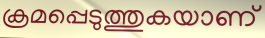
ക്രമപ്പെടുത്തുകയാണ്